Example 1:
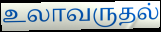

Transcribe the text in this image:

உலாவருதல்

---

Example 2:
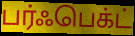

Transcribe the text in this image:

பர்ஃபெக்ட்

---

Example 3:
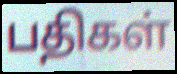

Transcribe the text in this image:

பதிகள்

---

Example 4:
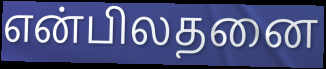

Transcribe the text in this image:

என்பிலதனை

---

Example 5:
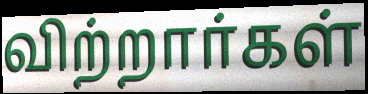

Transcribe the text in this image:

விற்றார்கள்